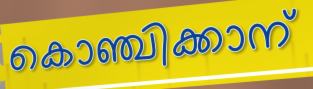
കൊഞ്ചിക്കാന്